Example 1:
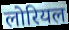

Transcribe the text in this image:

लोरियल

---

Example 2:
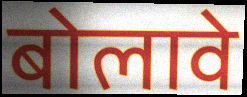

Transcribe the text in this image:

बोलावे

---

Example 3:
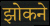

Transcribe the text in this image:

झोकने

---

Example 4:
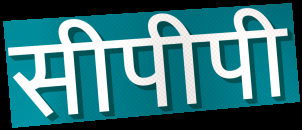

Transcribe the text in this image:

सीपीपी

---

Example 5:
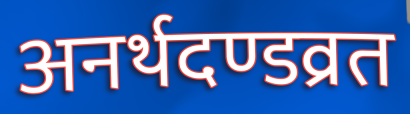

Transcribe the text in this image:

अनर्थदण्डव्रत